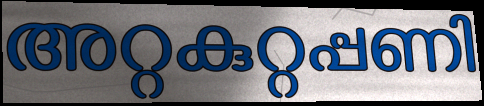
അറ്റകുറ്റപ്പണി